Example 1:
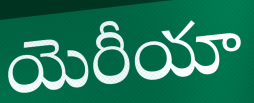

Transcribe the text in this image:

యెరీయా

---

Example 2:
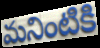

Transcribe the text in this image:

మనింటికి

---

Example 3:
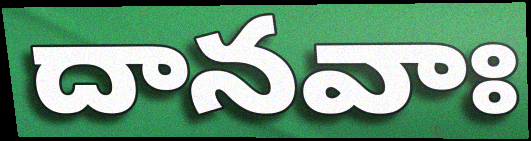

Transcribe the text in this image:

దానవాః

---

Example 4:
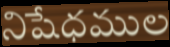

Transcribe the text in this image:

నిషేధముల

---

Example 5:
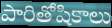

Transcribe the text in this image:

పారితోషికాలు